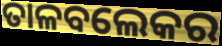
ତାଳବଲେକର